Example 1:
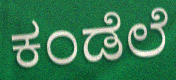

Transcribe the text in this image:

ಕಂಡೆಲೆ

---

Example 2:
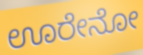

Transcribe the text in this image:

ಊರೇನೋ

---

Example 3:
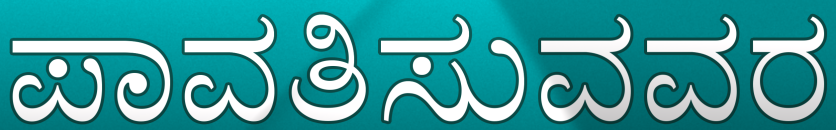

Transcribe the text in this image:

ಪಾವತಿಸುವವರ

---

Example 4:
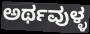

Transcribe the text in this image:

ಅರ್ಥವುಳ್ಳ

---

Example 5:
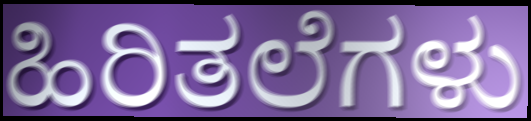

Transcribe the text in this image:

ಹಿರಿತಲೆಗಳು